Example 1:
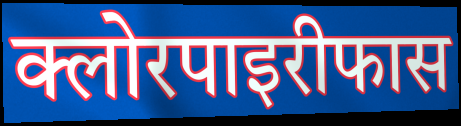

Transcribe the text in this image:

क्लोरपाइरीफास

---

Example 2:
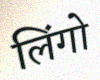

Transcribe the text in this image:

लिंगो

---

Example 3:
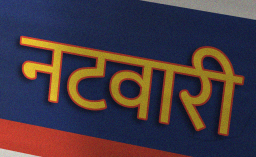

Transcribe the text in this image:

नटवारी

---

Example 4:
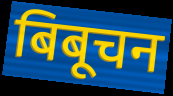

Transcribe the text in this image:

बिबूचन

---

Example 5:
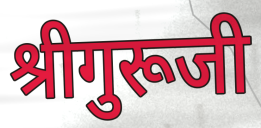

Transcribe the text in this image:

श्रीगुरूजी